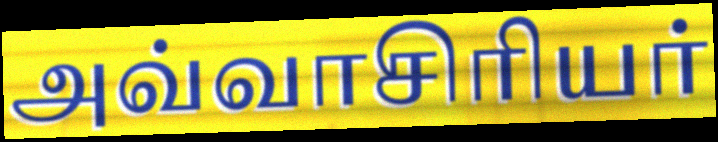
அவ்வாசிரியர்